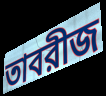
তাবরীজ